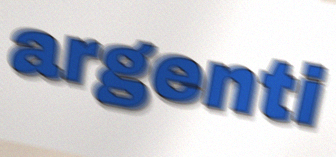
argenti